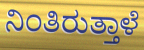
ನಿಂತಿರುತ್ತಾಳೆ